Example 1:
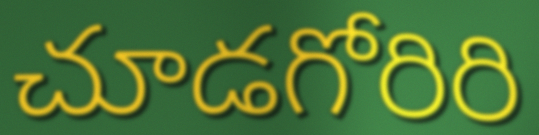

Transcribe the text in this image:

చూడగోరిరి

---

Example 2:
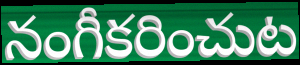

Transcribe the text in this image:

నంగీకరించుట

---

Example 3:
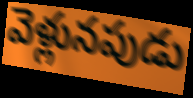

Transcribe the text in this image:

వెళ్లునపుడు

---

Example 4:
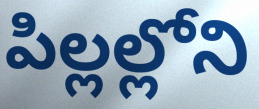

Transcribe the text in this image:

పిల్లల్లోని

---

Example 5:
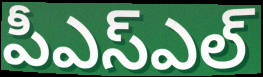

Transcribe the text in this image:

పీఎస్ఎల్